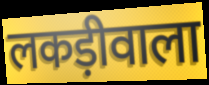
लकड़ीवाला